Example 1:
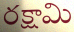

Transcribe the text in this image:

రక్షామి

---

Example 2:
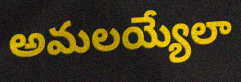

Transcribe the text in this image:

అమలయ్యేలా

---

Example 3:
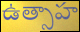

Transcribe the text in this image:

ఉత్సాహ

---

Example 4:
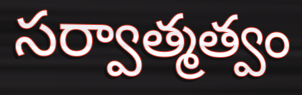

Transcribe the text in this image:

సర్వాత్మత్వం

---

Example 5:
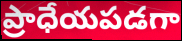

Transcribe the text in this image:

ప్రాధేయపడగా